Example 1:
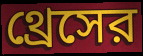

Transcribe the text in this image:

থ্রেসের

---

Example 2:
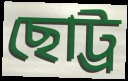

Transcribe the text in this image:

ছোট্র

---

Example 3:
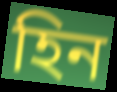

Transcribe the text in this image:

হিন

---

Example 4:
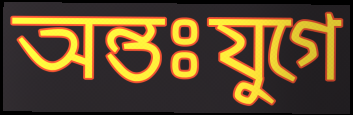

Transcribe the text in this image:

অন্তঃযুগে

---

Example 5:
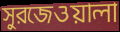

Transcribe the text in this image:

সুরজেওয়ালা